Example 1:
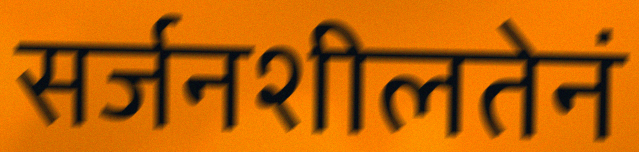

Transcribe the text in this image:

सर्जनशीलतेनं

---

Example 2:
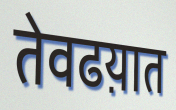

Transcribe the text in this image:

तेवढय़ात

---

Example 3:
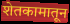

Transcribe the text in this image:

शेतकामातून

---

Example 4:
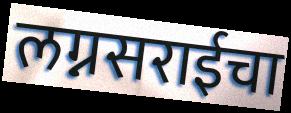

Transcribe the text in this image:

लग्नसराईचा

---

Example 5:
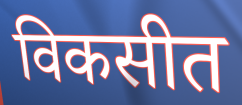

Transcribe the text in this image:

विकसीत